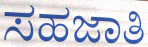
ಸಹಜಾತಿ